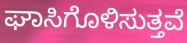
ಘಾಸಿಗೊಳಿಸುತ್ತವೆ